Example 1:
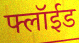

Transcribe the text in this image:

फ्लॉईड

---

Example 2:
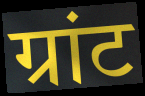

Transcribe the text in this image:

ग्रांट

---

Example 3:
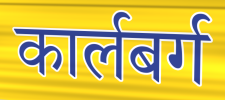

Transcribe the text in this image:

कार्लबर्ग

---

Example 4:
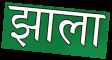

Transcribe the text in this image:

झाला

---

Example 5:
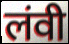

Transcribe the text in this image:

लंवी